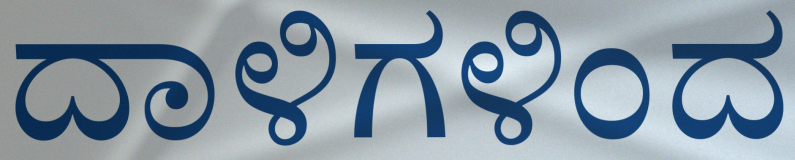
ದಾಳಿಗಳಿಂದ